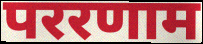
पररणाम